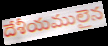
దేశీయములైన